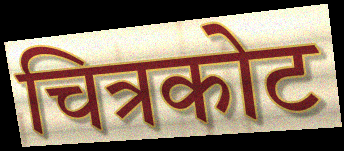
चित्रकोट